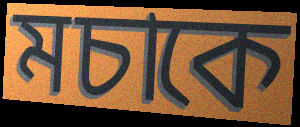
মচাকে